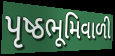
પૃષ્ઠભૂમિવાળી